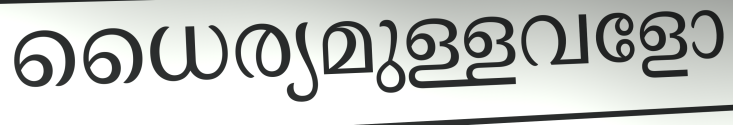
ധൈര്യമുള്ളവളോ